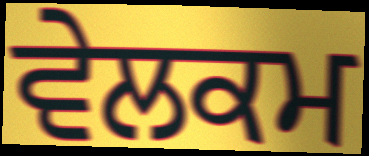
ਵੇਲਕਮ